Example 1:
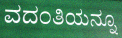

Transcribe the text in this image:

ವದಂತಿಯನ್ನೂ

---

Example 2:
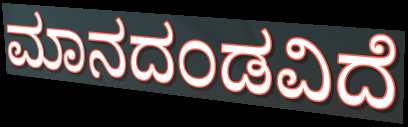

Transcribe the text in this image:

ಮಾನದಂಡವಿದೆ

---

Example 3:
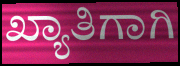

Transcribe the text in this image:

ಖ್ಯಾತಿಗಾಗಿ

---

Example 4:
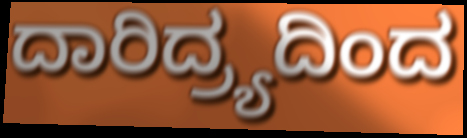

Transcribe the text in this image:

ದಾರಿದ್ರ್ಯದಿಂದ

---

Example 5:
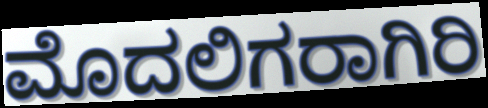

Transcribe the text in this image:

ಮೊದಲಿಗರಾಗಿರಿ